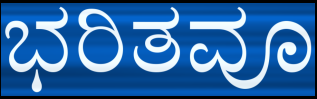
ಭರಿತವೂ